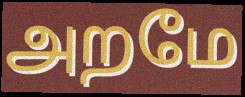
அறமே